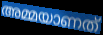
അമ്മയാണത്